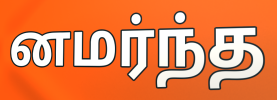
னமர்ந்த